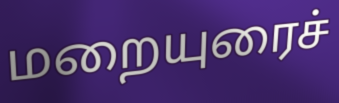
மறையுரைச்